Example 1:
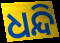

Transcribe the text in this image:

ଧନ୍ଦି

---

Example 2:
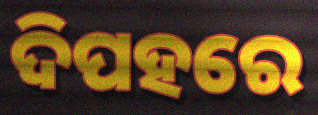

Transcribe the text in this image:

ଦିପହରେ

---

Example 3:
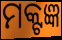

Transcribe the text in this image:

ମକ୍ଟଜ୍ଞ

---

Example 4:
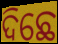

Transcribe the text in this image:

ଦିଛେ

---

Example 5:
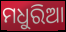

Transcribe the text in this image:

ମଧୁରିଆ